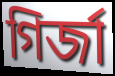
গির্জা